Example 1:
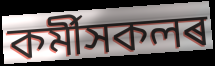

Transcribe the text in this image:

কৰ্মীসকলৰ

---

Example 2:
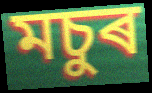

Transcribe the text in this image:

মচুৰ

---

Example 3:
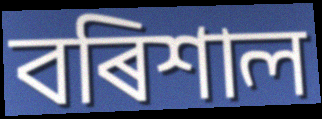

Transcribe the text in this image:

বৰিশাল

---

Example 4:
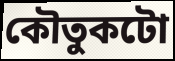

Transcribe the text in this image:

কৌতুকটো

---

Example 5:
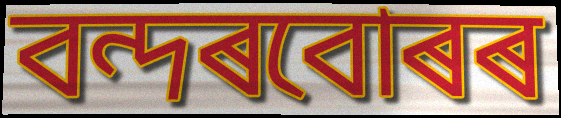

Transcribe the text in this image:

বন্দৰবোৰৰ